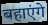
बहाएंगे